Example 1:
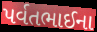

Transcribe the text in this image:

પર્વતભાઈના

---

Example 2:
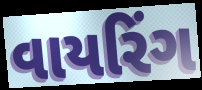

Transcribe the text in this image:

વાયરિંગ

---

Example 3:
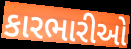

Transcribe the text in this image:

કારભારીઓ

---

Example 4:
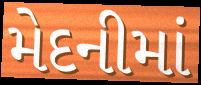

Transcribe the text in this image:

મેદનીમાં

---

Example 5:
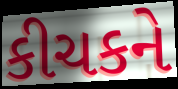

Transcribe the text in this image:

કીચકને